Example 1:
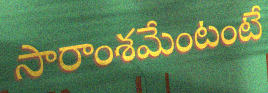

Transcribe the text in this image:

సారాంశమేంటంటే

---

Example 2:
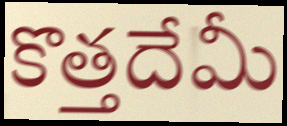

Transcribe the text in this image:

కొత్తదేమీ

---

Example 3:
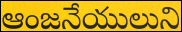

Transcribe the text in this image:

ఆంజనేయులుని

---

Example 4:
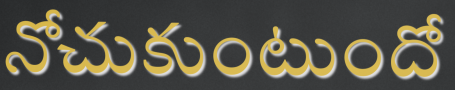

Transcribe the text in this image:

నోచుకుంటుందో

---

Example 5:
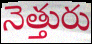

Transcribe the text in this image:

నెత్తురు